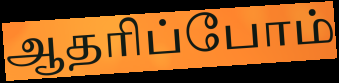
ஆதரிப்போம்